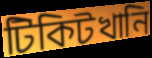
টিকিটখানি